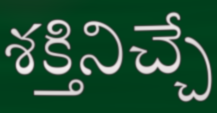
శక్తినిచ్చే